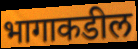
भागाकडील